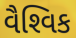
વૈશ્‍વિક